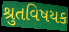
શ્રુતવિષયક